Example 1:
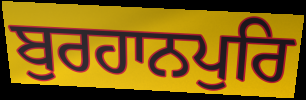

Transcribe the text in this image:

ਬੁਰਹਾਨਪੁਰਿ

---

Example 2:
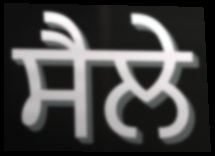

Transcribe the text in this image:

ਸੈਲੇ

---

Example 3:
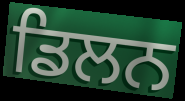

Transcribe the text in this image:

ਡਿਲਨ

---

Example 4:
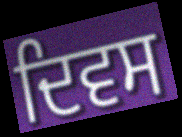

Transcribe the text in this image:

ਦਿਵਸ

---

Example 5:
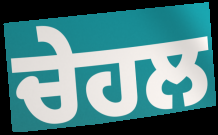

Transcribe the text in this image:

ਚੇਹਲ